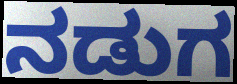
ನಡುಗ